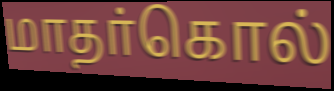
மாதர்கொல்